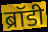
ब्रॉडी